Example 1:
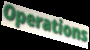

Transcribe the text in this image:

Operations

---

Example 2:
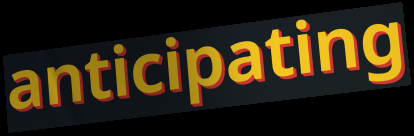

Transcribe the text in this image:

anticipating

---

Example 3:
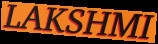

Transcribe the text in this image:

LAKSHMI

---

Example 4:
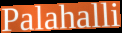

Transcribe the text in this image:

Palahalli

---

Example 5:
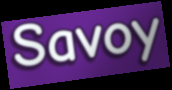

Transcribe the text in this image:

Savoy